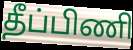
தீப்பிணி